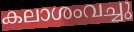
കലാശംവച്ചു